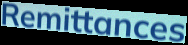
Remittances